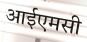
आईएमसी